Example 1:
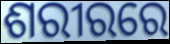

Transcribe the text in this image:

ଶରୀରରେ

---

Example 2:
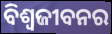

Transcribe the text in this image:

ବିଶ୍ଵଜୀବନର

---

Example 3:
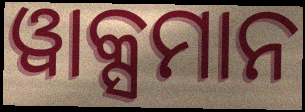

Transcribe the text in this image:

ୱାକ୍ସମାନ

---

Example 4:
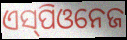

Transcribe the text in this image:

ଏସ୍‌ପିଓନେଜ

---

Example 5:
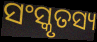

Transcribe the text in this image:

ସଂସ୍କୃତସ୍ୟ